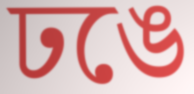
ঢঙে